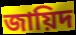
জায়িদ